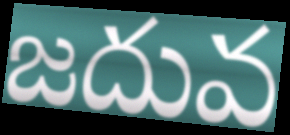
జదువ